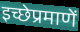
इच्छेप्रमाणें